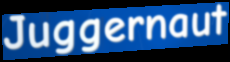
Juggernaut